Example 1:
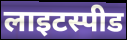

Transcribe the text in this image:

लाइटस्पीड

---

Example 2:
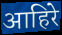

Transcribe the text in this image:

आहिरे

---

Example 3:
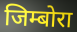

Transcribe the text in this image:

जिम्बोरा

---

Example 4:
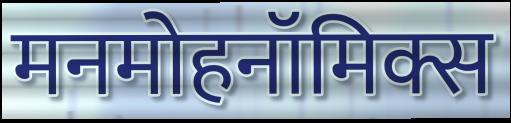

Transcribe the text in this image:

मनमोहनॉमिक्स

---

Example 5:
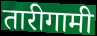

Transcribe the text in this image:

तारीगामी